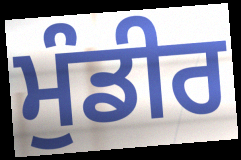
ਮੁੰਡੀਰ